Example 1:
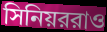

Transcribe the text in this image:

সিনিয়ররাও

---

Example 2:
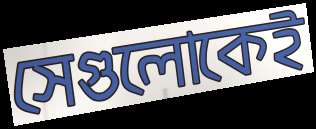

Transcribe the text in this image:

সেগুলোকেই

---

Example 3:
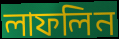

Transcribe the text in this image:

লাফলিন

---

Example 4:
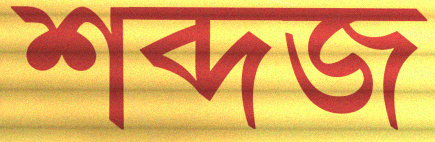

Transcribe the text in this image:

শব্দজ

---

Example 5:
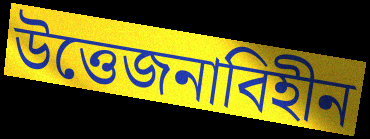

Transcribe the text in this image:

উত্তেজনাবিহীন